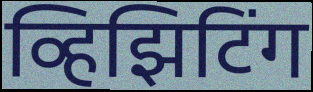
व्हिझिटिंग